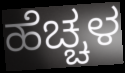
ಹೆಚ್ಚಳ